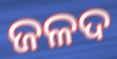
ଜଳଦ